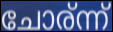
ചോര്ന്ന്